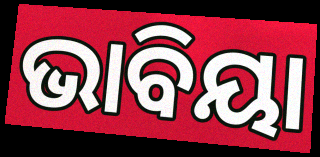
ଭାବିୟା